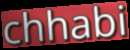
chhabi